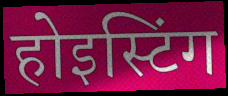
होइस्टिंग